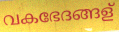
വകഭേദങ്ങള്